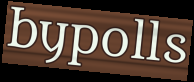
bypolls